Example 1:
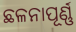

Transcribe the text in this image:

ଛଳନାପୂର୍ଣ୍ଣ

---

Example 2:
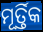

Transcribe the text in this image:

ମୂର୍ତ୍ତିକ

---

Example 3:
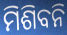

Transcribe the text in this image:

ମିଶିବନି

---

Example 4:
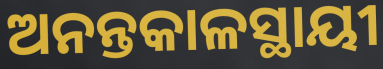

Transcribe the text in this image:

ଅନନ୍ତକାଳସ୍ଥାୟୀ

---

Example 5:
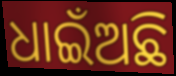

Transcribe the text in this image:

ଧାଇଁଅଛି